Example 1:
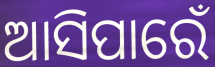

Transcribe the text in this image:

ଆସିପାରେଁ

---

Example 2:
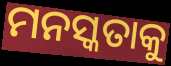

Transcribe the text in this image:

ମନସ୍କତାକୁ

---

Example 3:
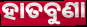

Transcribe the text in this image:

ହାତବୁଣା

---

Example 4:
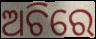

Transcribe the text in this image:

ଅଚିରେ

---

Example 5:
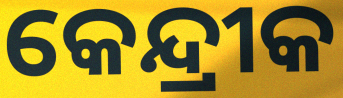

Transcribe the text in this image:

କେନ୍ଦ୍ରୀକ